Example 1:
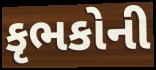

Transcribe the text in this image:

કૃભકોની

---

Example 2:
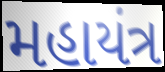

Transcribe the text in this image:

મહાયંત્ર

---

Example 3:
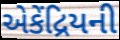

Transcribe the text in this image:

એકેંદ્રિયની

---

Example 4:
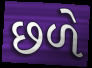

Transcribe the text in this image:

છળે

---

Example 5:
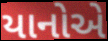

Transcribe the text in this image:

યાનોએ